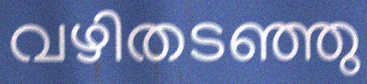
വഴിതടഞ്ഞു